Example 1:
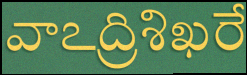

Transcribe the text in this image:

వాఽద్రిశిఖరే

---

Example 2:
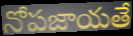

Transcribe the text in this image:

నోపజాయతే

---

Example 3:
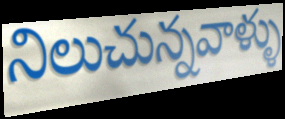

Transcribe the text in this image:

నిలుచున్నవాళ్ళు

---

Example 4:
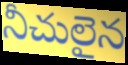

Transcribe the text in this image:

నీచులైన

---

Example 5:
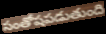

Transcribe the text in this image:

సంతోషపడుతుంది